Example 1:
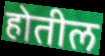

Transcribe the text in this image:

होतील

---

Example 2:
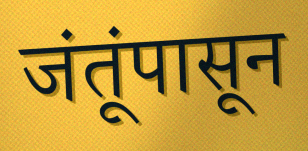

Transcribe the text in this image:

जंतूंपासून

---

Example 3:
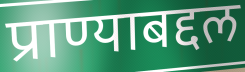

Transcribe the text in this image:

प्राण्याबद्दल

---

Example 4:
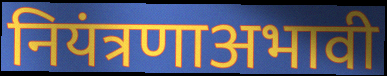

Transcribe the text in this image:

नियंत्रणाअभावी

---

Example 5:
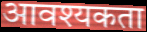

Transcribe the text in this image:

आवश्‍यकता